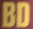
BD